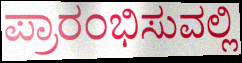
ಪ್ರಾರಂಭಿಸುವಲ್ಲಿ